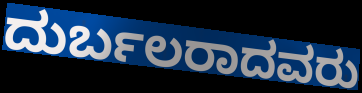
ದುರ್ಬಲರಾದವರು